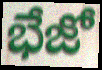
భేజో